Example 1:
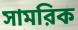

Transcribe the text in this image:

সামরিক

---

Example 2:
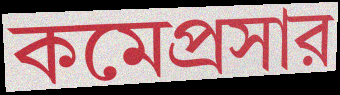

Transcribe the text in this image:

কমেপ্রসার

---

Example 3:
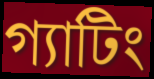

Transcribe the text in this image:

গ্যাটিং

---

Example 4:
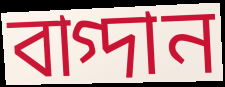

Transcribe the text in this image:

বাগ্দান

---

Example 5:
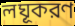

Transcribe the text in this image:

লঘূকরণ